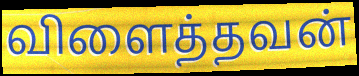
விளைத்தவன்